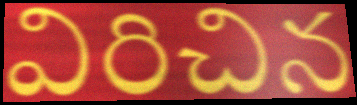
విరిచిన